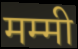
मम्मी